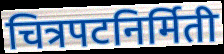
चित्रपटनिर्मिती